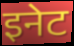
इनेट